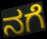
ನಗೆ